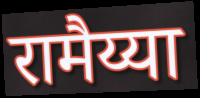
रामैय्या